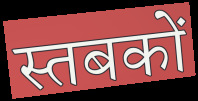
स्तबकों